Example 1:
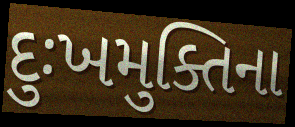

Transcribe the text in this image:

દુઃખમુક્તિના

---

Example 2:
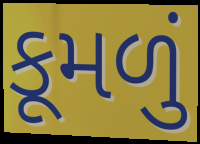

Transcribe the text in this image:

કૂમળું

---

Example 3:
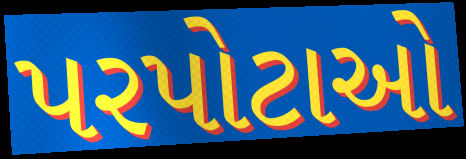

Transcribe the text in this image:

પરપોટાઓ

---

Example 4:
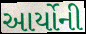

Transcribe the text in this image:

આર્યોની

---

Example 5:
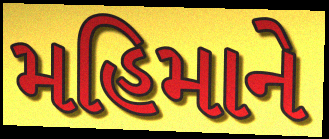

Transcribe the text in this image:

મહિમાને